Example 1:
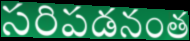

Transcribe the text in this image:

సరిపడనంత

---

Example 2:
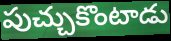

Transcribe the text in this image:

పుచ్చుకొంటాడు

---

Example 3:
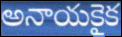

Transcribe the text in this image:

అనాయకైక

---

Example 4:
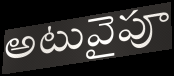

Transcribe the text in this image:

అటువైపూ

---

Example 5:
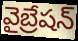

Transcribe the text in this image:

వైబ్రేషన్